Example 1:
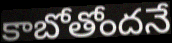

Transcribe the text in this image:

కాబోతోందనే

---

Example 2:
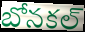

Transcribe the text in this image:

బోనకల్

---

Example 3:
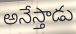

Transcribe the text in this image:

అనేస్తాడు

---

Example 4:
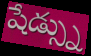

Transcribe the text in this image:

షేడ్స్ను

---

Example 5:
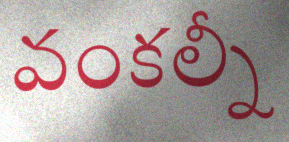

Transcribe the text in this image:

వంకల్నీ